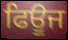
ਫਿਊਜ